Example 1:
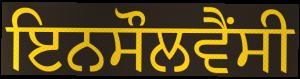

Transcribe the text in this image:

ਇਨਸੌਲਵੈਂਸੀ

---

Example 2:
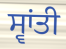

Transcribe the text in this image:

ਸ੍ਵਾਂਤੀ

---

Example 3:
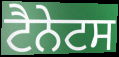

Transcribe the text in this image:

ਟੈਨੇਟਸ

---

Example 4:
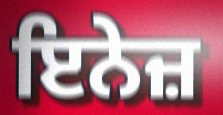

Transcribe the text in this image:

ਇਨੇਜ਼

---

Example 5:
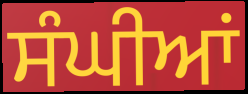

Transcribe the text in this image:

ਸੰਘੀਆਂ